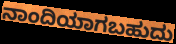
ನಾಂದಿಯಾಗಬಹುದು